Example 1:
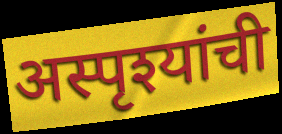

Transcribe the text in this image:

अस्पृश्यांची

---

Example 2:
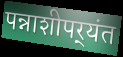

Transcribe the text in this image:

पन्नाशीपर्यंत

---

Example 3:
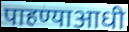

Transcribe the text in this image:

पाहण्याआधी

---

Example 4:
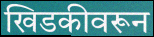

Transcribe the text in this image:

खिडकीवरून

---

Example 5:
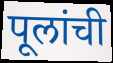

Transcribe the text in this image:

पूलांची